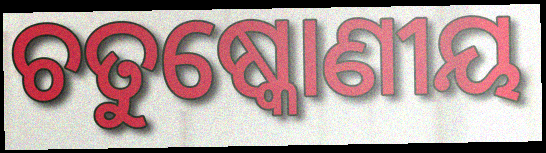
ଚତୁଷ୍କୋଣୀୟ